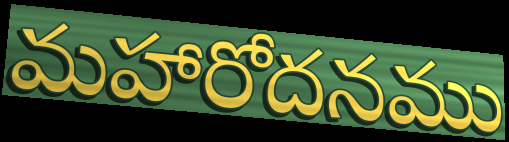
మహారోదనము